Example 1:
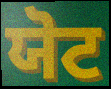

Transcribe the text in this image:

ਯੋਟ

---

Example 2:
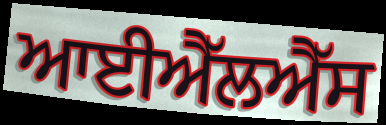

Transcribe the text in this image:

ਆਈਐੱਲਐੱਸ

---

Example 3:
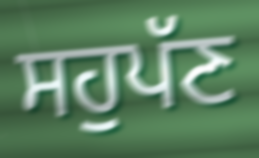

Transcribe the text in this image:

ਸਹੁਪੱਣ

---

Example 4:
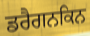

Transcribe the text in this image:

ਡਰੈਗਨਕਿਨ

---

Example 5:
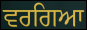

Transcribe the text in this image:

ਵਰਗਿਆ